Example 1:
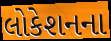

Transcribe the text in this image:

લોકેશનના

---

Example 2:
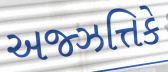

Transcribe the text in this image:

અજ્ઝત્તિકે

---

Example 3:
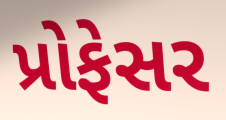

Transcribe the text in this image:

પ્રોફેસર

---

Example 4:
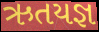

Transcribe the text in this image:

ઋતયજ્ઞ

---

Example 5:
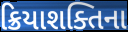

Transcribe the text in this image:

ક્રિયાશક્તિના